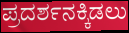
ಪ್ರದರ್ಶನಕ್ಕಿಡಲು